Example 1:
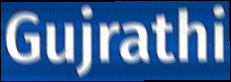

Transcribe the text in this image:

Gujrathi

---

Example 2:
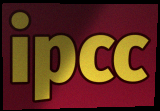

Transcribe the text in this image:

ipcc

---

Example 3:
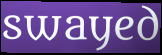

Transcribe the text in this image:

swayed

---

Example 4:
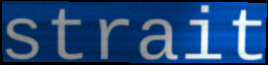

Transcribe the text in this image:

strait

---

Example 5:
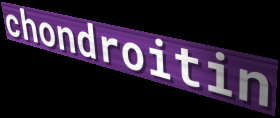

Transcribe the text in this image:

chondroitin